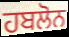
ਹਬਲੋਨ